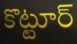
కొట్టూర్